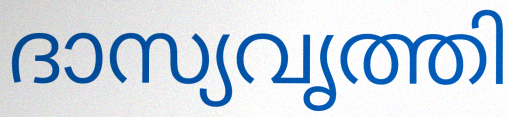
ദാസ്യവൃത്തി